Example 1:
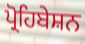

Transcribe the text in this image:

ਪ੍ਰੋਹਿਬੇਸ਼ਨ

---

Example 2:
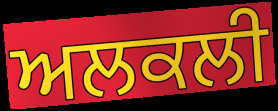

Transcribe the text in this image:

ਅਲਕਲੀ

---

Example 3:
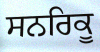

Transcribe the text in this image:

ਸਨਰਿਕੂ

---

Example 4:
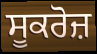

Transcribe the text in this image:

ਸੂਕਰੋਜ਼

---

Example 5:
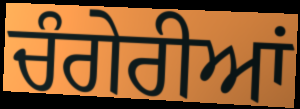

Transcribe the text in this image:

ਚੰਗੇਰੀਆਂ